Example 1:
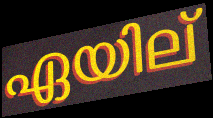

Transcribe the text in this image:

ഏയില്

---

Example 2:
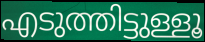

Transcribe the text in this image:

എടുത്തിട്ടുള്ളൂ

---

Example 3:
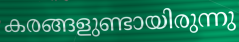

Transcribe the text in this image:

കരങ്ങളുണ്ടായിരുന്നു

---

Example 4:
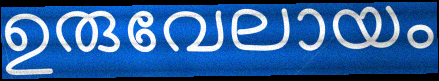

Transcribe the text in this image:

ഉരുവേലായം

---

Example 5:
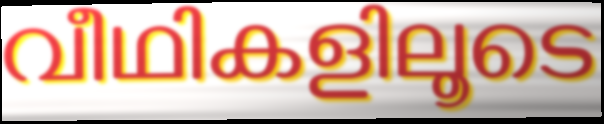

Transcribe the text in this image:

വീഥികളിലൂടെ